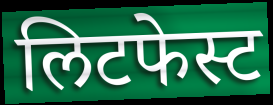
लिटफेस्ट